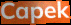
Capek